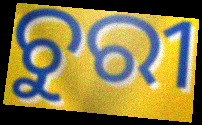
ଚୁରୀ